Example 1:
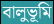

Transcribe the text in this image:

বালুভূমি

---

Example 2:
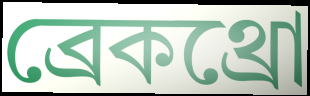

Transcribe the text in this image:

ব্রেকথ্রো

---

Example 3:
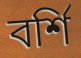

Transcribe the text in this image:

বর্শি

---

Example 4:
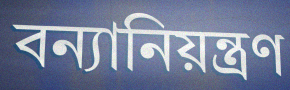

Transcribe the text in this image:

বন্যানিয়ন্ত্রণ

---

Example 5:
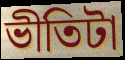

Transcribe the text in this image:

ভীতিটা